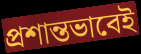
প্রশান্তভাবেই